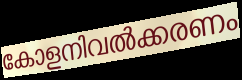
കോളനിവൽക്കരണം